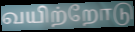
வயிற்றோடு